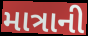
માત્રાની